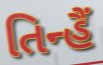
તિન્હૈં